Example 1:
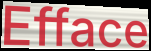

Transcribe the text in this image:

Efface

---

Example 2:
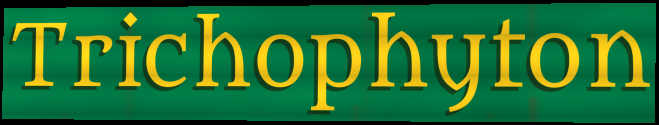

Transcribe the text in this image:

Trichophyton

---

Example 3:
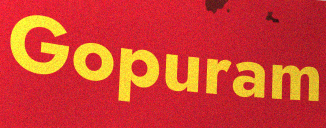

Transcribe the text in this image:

Gopuram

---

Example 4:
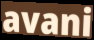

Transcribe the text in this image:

avani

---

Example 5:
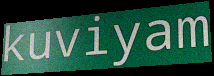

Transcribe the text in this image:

kuviyam